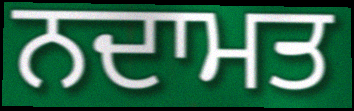
ਨਦਾਮਤ